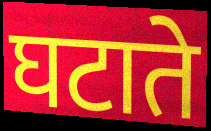
घटाते